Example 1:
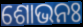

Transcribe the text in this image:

ଶୋଭନଃ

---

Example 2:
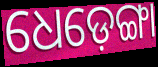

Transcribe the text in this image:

ଧେଡ଼େଙ୍ଗା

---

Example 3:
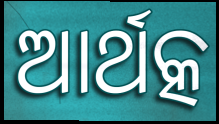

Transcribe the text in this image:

ଆର୍ଥତ୍କ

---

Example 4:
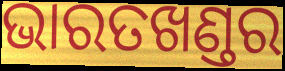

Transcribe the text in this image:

ଭାରତଖଣ୍ଡର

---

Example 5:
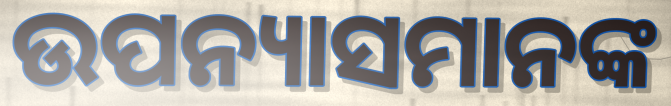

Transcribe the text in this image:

ଉପନ୍ୟାସମାନଙ୍କ